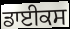
ਡਾਈਕਸ